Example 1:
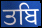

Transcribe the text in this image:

ਤਬਿ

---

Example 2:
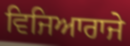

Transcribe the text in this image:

ਵਿਜਿਆਰਾਜੇ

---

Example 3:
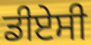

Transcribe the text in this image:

ਡੀਏਸੀ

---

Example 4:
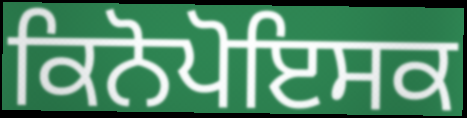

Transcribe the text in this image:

ਕਿਨੋਪੋਇਸਕ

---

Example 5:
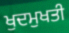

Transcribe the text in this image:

ਖੁਦਮੁਖਤੀ